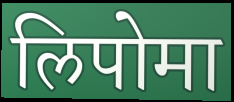
लिपोमा